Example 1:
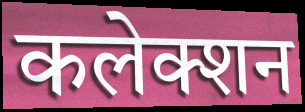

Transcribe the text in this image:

कलेक्शन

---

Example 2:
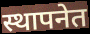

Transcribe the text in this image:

स्थापनेत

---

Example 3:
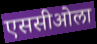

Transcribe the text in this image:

एससीओला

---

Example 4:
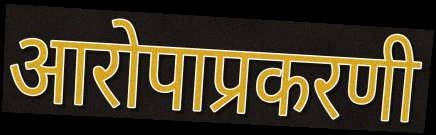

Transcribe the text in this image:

आरोपाप्रकरणी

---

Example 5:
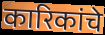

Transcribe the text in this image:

कारिकांचे